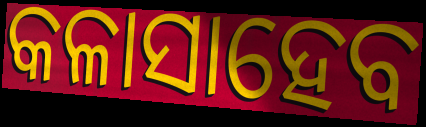
କଳାସାହେବ